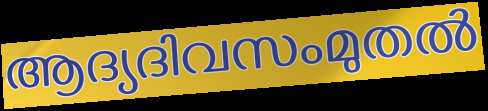
ആദ്യദിവസംമുതൽ